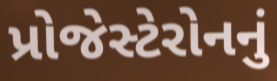
પ્રોજેસ્ટેરોનનું